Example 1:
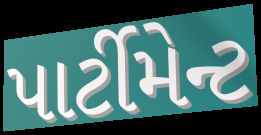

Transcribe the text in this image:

પાર્ટીમેન્ટ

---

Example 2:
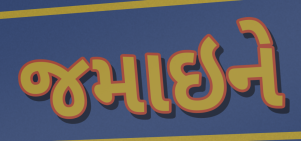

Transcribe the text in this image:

જમાઇને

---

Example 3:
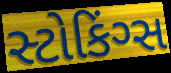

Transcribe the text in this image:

સ્ટોકિંગ્સ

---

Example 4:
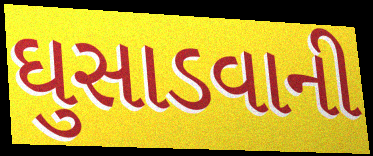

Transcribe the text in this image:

ઘુસાડવાની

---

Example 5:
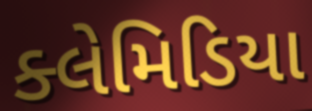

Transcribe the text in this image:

ક્લેમિડિયા